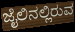
ಜೈಲಿನಲ್ಲಿರುವ